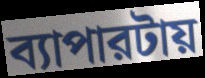
ব্যাপারটায়